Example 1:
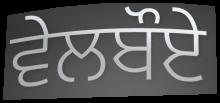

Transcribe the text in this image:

ਵੇਲਬੌਏ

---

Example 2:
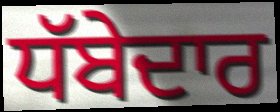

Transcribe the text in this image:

ਧੱਬੇਦਾਰ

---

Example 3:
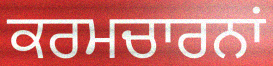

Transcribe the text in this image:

ਕਰਮਚਾਰਨਾਂ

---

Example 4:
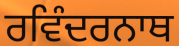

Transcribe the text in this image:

ਰਵਿੰਦਰਨਾਥ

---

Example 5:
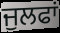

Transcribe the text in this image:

ਜੁਲਫਾਂ